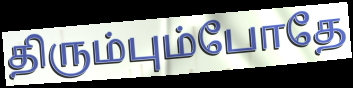
திரும்பும்போதே